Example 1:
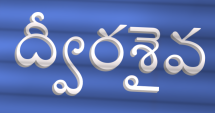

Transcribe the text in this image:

ద్వీరశైవ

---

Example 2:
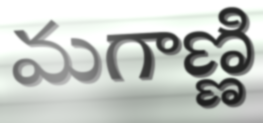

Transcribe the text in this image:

మగాణ్ణి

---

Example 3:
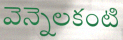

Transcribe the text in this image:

వెన్నెలకంటి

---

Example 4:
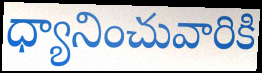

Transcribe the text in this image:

ధ్యానించువారికి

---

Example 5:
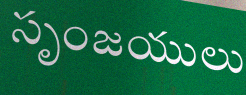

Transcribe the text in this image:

సృంజయులు